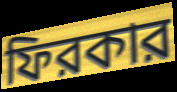
ফিরকার